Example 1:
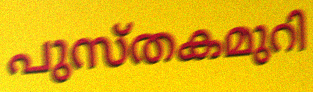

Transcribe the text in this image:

പുസ്തകമുറി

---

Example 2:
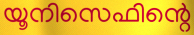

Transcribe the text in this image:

യൂനിസെഫിന്റെ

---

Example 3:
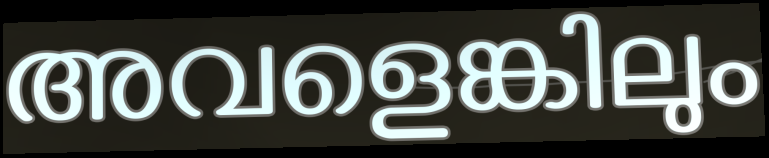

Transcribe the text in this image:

അവളെങ്കിലും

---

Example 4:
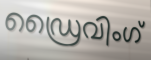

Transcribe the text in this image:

ഡ്രൈവിംഗ്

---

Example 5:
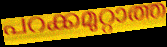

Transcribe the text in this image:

പറക്കമുറ്റാത്ത